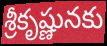
శ్రీకృష్ణునకు